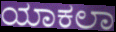
ಯಾಕಲಾ